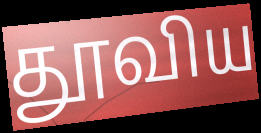
தூவிய